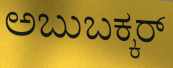
ಅಬುಬಕ್ಕರ್